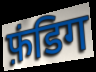
फ़ंडिग